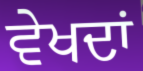
ਵੇਖਦਾਂ